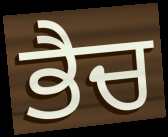
ਭੈਚ